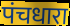
पंचधारा